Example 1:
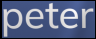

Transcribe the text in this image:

peter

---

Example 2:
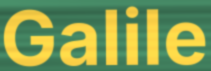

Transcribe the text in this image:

Galile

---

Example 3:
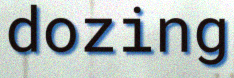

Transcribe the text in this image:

dozing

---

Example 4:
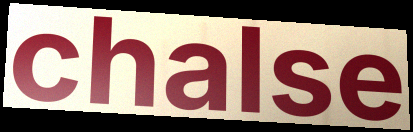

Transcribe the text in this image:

chalse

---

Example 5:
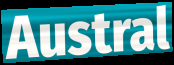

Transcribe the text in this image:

Austral